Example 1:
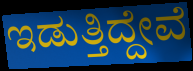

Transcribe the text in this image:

ಇಡುತ್ತಿದ್ದೇವೆ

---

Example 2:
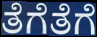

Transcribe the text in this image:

ತೆಗೆತೆಗೆ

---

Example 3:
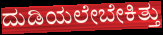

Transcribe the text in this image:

ದುಡಿಯಲೇಬೇಕಿತ್ತು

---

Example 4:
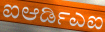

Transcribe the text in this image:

ಐಆರ್ಡಿಎಐ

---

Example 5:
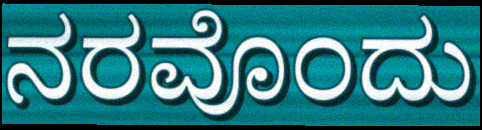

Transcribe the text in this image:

ನರವೊಂದು